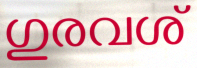
ഗുരവശ്